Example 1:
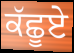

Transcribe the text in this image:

ਕੱਛੂਏ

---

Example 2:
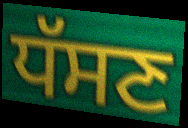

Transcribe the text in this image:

ਧੱਸਣ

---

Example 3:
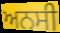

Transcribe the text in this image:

ਅਨਸੀ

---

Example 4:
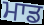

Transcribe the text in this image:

ਮਾਡ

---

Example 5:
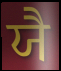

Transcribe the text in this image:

ਯੈ